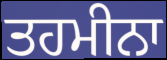
ਤਹਮੀਨਾ